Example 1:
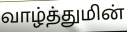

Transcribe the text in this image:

வாழ்த்துமின்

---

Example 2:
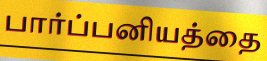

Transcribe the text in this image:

பார்ப்பனியத்தை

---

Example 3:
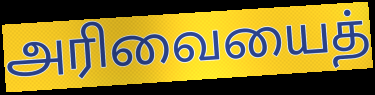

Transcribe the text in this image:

அரிவையைத்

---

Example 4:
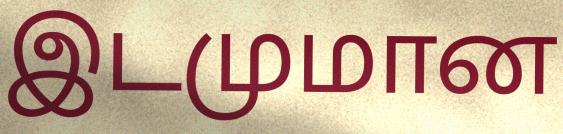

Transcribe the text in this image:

இடமுமான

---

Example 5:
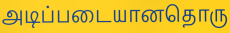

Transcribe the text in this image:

அடிப்படையானதொரு